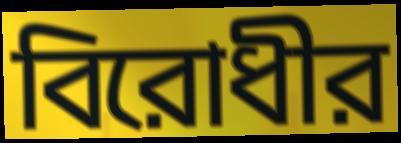
বিরোধীর